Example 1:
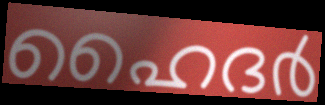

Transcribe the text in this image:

ഹൈദർ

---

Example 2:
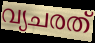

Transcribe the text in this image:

വ്യചരത്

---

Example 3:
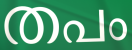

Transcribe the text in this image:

തപം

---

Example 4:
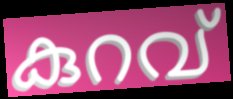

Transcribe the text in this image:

കുറവ്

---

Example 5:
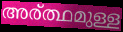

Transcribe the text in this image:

അര്ത്ഥമുള്ള